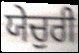
ਯੇਚੁਰੀ